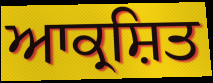
ਆਕ੍ਰਸ਼ਿਤ